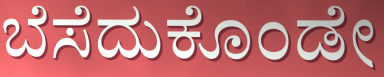
ಬೆಸೆದುಕೊಂಡೇ